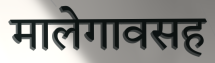
मालेगावसह